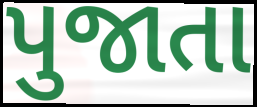
પુજાતા